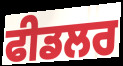
ਫੀਡਲਰ